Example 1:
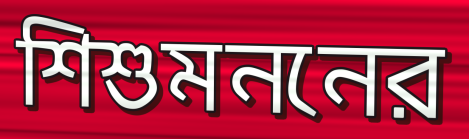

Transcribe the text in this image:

শিশুমননের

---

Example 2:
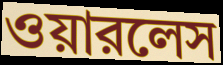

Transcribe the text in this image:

ওয়ারলেস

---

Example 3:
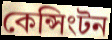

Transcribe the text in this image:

কেন্সিংটন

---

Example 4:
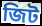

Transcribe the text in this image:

জিট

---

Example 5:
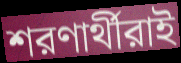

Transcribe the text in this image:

শরণার্থীরাই